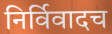
निर्विवादच